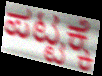
ಪಟ್ಟಕ್ಕೆ